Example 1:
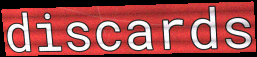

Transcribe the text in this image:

discards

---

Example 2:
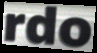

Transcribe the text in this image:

rdo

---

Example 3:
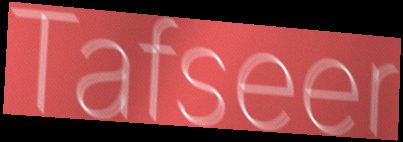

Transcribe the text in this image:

Tafseer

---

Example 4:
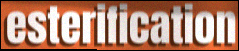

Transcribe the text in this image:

esterification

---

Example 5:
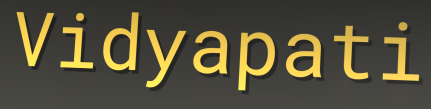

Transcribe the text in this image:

Vidyapati